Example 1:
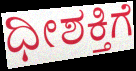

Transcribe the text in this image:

ಧೀಶಕ್ತಿಗೆ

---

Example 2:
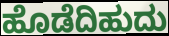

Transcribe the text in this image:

ಹೊಡೆದಿಹುದು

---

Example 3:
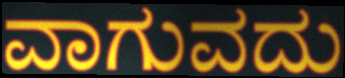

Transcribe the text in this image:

ವಾಗುವದು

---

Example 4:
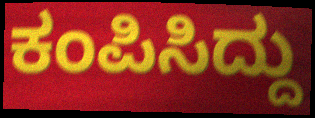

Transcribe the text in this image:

ಕಂಪಿಸಿದ್ದು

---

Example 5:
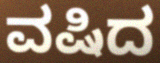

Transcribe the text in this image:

ವಷಿದ